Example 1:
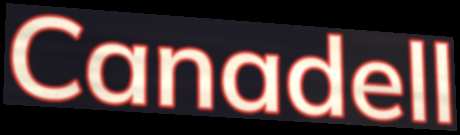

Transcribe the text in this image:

Canadell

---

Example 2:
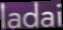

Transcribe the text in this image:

ladai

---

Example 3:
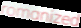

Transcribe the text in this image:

romanized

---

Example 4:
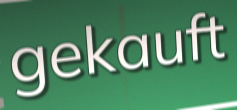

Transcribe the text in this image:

gekauft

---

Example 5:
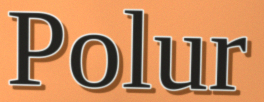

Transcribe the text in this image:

Polur